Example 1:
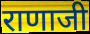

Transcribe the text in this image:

राणाजी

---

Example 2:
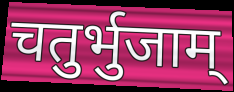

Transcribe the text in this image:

चतुर्भुजाम्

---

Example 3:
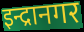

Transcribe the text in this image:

इन्द्रानगर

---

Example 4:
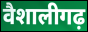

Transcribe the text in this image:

वैशालीगढ़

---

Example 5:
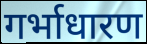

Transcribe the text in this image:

गर्भाधारण